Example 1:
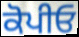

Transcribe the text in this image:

ਕੋਪੀਓ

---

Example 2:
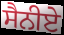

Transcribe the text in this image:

ਸੈਨੀਏ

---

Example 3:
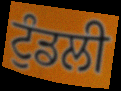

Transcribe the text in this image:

ਟੁੰਡਲੀ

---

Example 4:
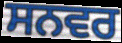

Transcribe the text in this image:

ਸਨਵਰ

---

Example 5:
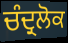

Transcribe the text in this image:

ਚੰਦ੍ਰਲੋਕ